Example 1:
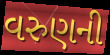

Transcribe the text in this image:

વરુણની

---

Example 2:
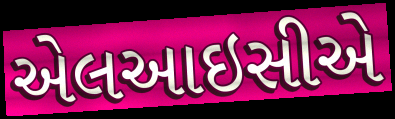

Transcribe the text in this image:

એલઆઇસીએ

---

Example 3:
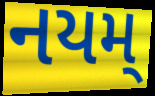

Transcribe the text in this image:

નયમ્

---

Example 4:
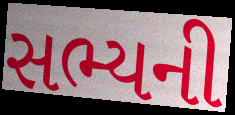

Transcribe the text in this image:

સભ્યની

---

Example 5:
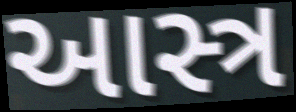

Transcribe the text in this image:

આસ્ત્ર